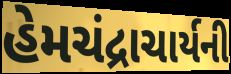
હેમચંદ્રાચાર્યની